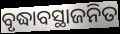
ବୃଦ୍ଧାବସ୍ଥାଜନିତ